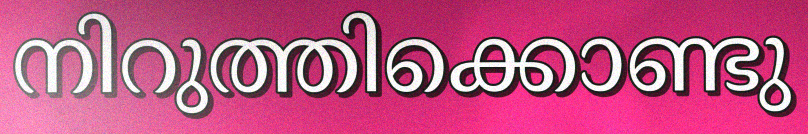
നിറുത്തിക്കൊണ്ടു